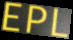
EPL